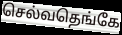
செல்வதெங்கே